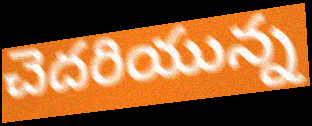
చెదరియున్న